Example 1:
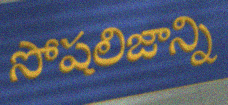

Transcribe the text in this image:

సోషలిజాన్ని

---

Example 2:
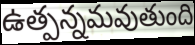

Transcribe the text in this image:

ఉత్పన్నమవుతుంది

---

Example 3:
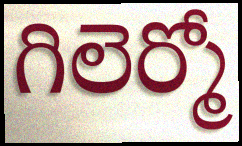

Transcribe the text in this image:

గిలెర్మో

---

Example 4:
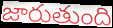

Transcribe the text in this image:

జారుతుంది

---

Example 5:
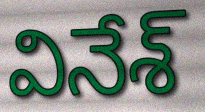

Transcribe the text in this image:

వినేశ్